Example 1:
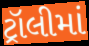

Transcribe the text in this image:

ટ્રૉલીમાં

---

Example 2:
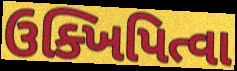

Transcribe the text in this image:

ઉક્ખિપિત્વા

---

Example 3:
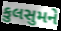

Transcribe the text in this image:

કુલસુમને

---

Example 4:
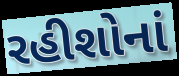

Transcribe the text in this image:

રહીશોનાં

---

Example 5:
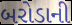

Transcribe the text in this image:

બરોડાની